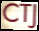
CTJ